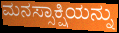
ಮನಸ್ಸಾಕ್ಷಿಯನ್ನು